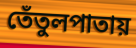
তেঁতুলপাতায়